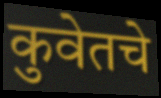
कुवेतचे